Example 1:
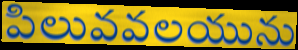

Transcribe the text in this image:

పిలువవలయును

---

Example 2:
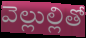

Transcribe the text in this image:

వెల్లుల్లితో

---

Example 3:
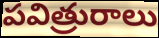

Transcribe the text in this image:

పవిత్రురాలు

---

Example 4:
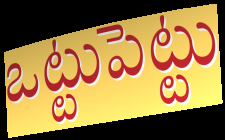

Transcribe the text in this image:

ఒట్టుపెట్టు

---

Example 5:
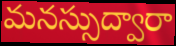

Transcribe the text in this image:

మనస్సుద్వారా